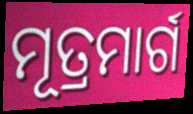
ମୂତ୍ରମାର୍ଗ